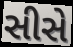
સીસે